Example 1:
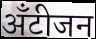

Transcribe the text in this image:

अँटीजन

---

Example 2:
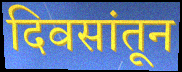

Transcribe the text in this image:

दिवसांतून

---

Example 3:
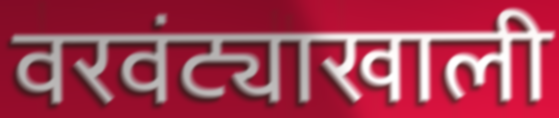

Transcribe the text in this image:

वरवंट्याखाली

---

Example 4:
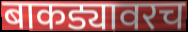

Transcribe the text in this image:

बाकड्यावरच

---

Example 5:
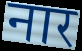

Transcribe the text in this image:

नार